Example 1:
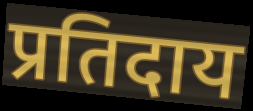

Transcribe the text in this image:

प्रतिदाय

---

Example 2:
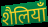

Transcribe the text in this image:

शैलियाँ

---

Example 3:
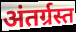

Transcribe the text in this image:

अंतर्ग्रस्त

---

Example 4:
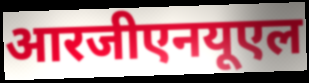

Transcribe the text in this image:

आरजीएनयूएल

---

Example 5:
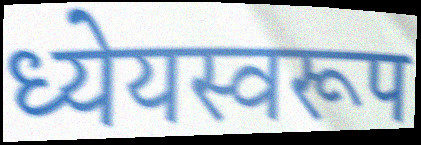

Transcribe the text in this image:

ध्येयस्वरूप